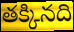
తక్కినది